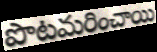
పొటమరించాయి